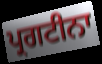
ਪ੍ਰਗਟੀਨਾ